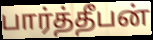
பார்த்தீபன்